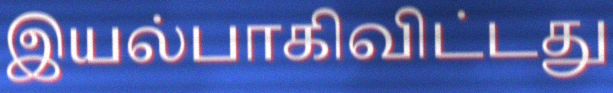
இயல்பாகிவிட்டது